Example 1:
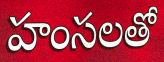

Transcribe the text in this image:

హంసలతో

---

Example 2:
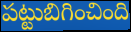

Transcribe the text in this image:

పట్టుబిగించింది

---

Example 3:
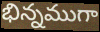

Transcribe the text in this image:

భిన్నముగా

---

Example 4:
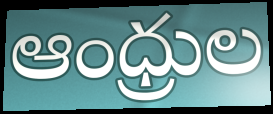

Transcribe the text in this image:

ఆంధ్రుల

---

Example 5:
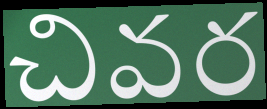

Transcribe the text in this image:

చివర